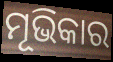
ମୂଭିକାର